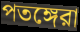
পতঙ্গেরা